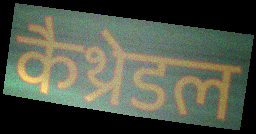
कैथ्रेडल